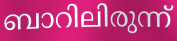
ബാറിലിരുന്ന്